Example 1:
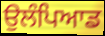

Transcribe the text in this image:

ਉਲੰਪਿਆਡ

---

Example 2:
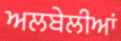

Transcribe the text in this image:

ਅਲਬੇਲੀਆਂ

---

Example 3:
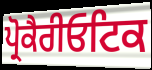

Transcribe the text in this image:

ਪ੍ਰੋਕੈਰੀਓਟਿਕ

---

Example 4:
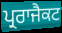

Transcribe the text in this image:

ਪ੍ਰਰਾਜੈਕਟ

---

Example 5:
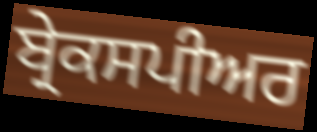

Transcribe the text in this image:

ਬ੍ਰੇਕਸਪੀਅਰ